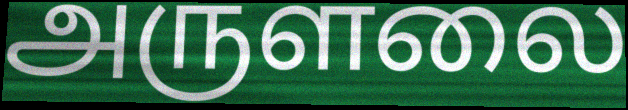
அருளலை